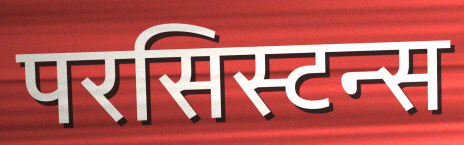
परसिस्टन्स